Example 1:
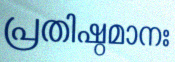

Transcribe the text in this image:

പ്രതിഷ്ഠമാനഃ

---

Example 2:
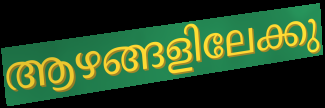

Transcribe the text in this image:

ആഴങ്ങളിലേക്കു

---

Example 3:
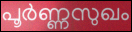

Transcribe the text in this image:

പൂർണ്ണസുഖം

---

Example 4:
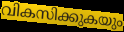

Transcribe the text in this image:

വികസിക്കുകയും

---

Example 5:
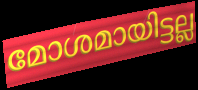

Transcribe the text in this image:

മോശമായിട്ടല്ല